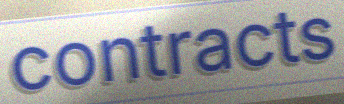
contracts